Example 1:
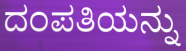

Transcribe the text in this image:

ದಂಪತಿಯನ್ನು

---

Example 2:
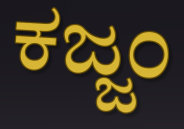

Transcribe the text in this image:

ಕಜ್ಜಂ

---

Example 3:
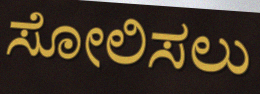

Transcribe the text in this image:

ಸೋಲಿಸಲು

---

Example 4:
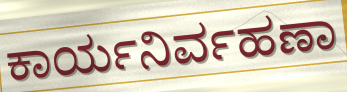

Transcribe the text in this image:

ಕಾರ್ಯನಿರ್ವಹಣಾ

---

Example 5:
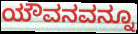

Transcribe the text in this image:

ಯೌವನವನ್ನೂ